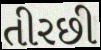
તીરછી